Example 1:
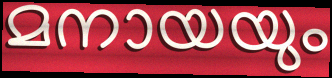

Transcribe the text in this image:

മനായയും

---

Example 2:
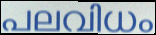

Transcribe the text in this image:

പലവിധം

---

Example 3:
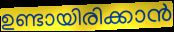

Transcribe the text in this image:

ഉണ്ടായിരിക്കാൻ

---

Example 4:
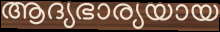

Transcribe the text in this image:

ആദ്യഭാര്യയായ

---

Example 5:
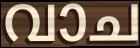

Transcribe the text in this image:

വാച